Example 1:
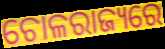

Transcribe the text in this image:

ଚୋଳରାଜ୍ୟରେ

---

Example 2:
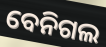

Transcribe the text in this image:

ବେନିଗଲ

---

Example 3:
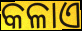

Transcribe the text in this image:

କଳାଏ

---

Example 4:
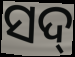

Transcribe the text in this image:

ସଦ୍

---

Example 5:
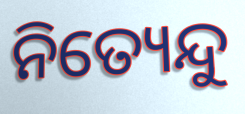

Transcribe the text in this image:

ନିତ୍ୟେନ୍ଦୁ